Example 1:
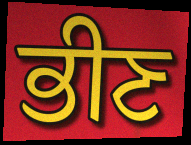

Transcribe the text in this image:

ਭੀਣ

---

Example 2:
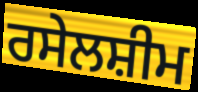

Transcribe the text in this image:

ਰਸੇਲਸ਼ੀਮ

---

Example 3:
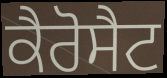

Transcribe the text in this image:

ਕੈਰੋਸੈਟ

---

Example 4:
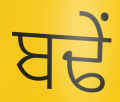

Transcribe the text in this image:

ਬਢੇਂ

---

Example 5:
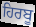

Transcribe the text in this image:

ਹਿਰਬੂ